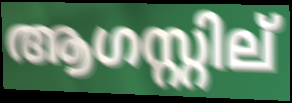
ആഗസ്റ്റില്